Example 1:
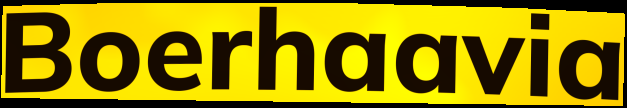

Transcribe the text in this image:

Boerhaavia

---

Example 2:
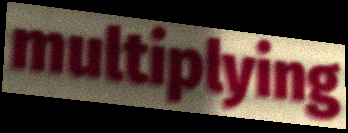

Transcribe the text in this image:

multiplying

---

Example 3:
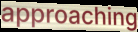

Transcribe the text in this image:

approaching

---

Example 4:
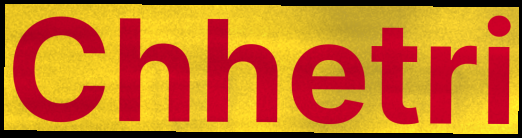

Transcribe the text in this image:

Chhetri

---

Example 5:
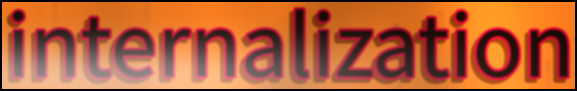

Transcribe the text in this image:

internalization